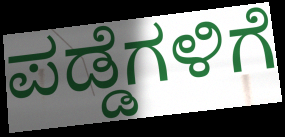
ಪಡ್ಡೆಗಳಿಗೆ